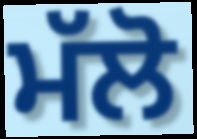
ਮੱਲੋ